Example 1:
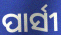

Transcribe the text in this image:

ପାର୍ସୀ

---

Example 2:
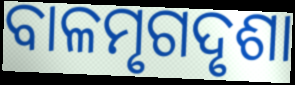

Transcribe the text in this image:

ବାଳମୃଗଦୃଶା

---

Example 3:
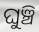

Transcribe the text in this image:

ଘୁଞ୍ଚି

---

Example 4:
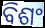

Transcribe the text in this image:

ବିଶଂ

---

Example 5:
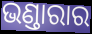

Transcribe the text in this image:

ଭଣ୍ଡାରାର